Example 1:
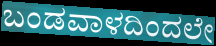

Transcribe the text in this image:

ಬಂಡವಾಳದಿಂದಲೇ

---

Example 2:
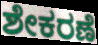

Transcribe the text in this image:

ಶೇಕರಣೆ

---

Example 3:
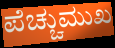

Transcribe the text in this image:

ಪೆಚ್ಚುಮುಖ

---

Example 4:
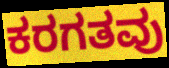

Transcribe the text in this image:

ಕರಗತವು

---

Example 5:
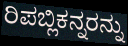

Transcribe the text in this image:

ರಿಪಬ್ಲಿಕನ್ನರನ್ನು